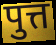
पुत्त